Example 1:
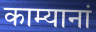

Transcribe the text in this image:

काम्यानां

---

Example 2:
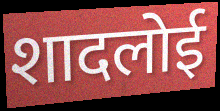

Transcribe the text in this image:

शादलोई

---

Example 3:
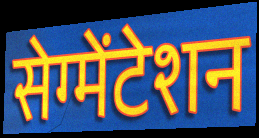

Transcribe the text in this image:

सेग्मेंटेशन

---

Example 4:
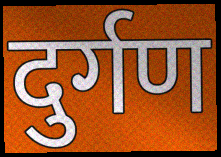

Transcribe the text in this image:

दुर्गण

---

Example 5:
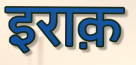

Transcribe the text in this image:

इराक़